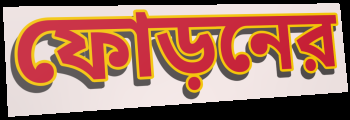
ফোড়নের